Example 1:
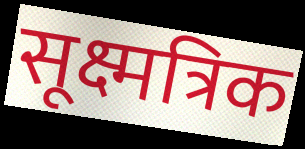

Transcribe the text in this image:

सूक्ष्मत्रिक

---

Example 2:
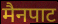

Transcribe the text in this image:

मैनपाट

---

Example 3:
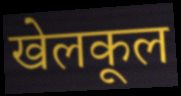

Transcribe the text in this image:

खेलकूल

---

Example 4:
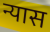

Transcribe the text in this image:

न्‍यास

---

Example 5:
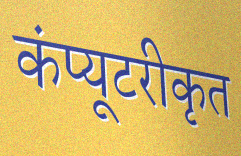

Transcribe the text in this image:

कंप्यूटरीकृत